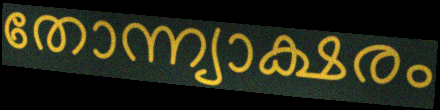
തോന്ന്യാക്ഷരം